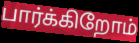
பார்க்கிறோம்